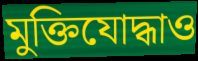
মুক্তিযোদ্ধাও